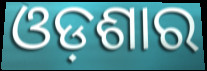
ଓଡ଼ଶାର